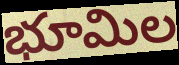
భూమిల